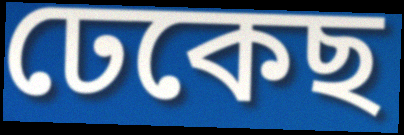
ঢেকেছ